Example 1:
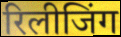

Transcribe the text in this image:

रिलीजिंग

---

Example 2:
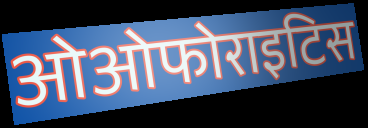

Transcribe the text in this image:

ओओफोराइटिस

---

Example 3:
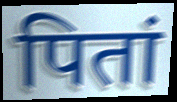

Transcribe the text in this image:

पितां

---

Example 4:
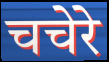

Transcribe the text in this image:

चचेरे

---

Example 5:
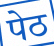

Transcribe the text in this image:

पेठ